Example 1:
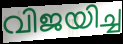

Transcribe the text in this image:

വിജയിച്ച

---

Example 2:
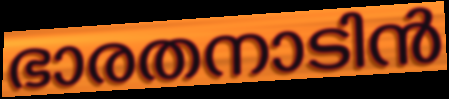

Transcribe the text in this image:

ഭാരതനാടിൻ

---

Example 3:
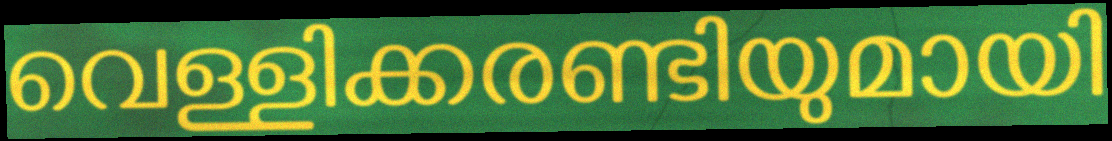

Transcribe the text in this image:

വെള്ളിക്കരണ്ടിയുമായി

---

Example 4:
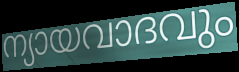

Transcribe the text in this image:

ന്യായവാദവും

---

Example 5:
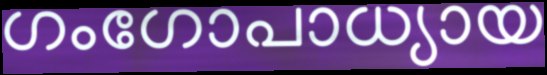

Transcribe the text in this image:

ഗംഗോപാധ്യായ